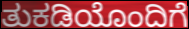
ತುಕಡಿಯೊಂದಿಗೆ